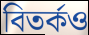
বিতৰ্কও